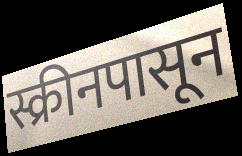
स्क्रीनपासून